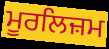
ਮੂਰਲਿਜ਼ਮ